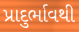
પ્રાદુર્ભાવથી